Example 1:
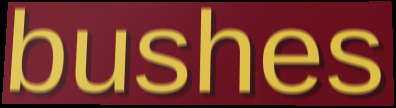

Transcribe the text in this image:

bushes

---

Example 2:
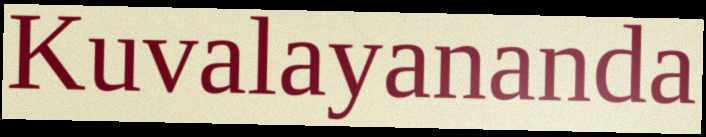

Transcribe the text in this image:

Kuvalayananda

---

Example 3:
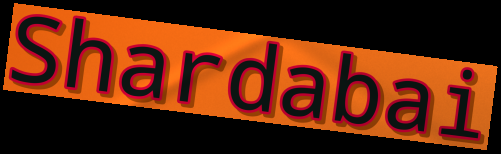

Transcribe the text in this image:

Shardabai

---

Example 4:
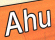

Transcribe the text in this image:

Ahu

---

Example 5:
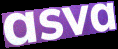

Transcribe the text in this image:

asva